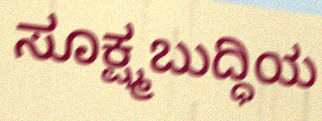
ಸೂಕ್ಷ್ಮಬುದ್ಧಿಯ